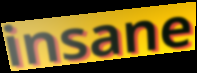
insane